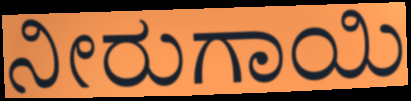
ನೀರುಗಾಯಿ